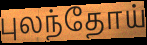
புலந்தோய்